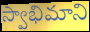
స్వాభిమాని